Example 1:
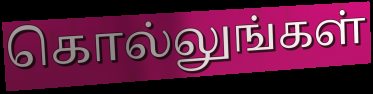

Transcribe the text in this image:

கொல்லுங்கள்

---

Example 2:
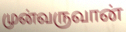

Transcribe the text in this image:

முன்வருவான்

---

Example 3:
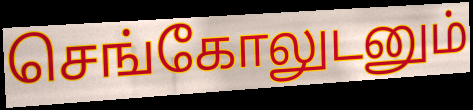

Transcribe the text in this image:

செங்கோலுடனும்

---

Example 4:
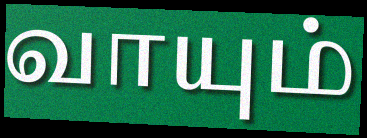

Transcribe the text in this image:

வாயும்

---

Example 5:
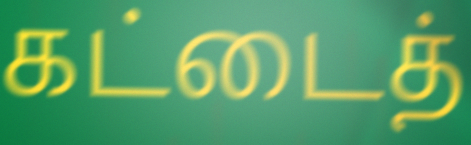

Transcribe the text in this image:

கட்டைத்